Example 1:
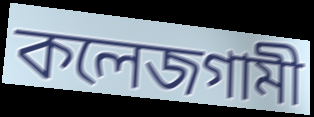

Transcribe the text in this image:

কলেজগামী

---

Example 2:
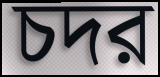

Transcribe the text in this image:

চদর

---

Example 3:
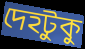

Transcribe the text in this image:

দেহটুকু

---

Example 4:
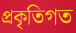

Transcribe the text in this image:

প্রকৃতিগত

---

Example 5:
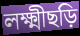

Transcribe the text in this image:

লক্ষ্মীছড়ি